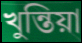
খুন্তিয়া